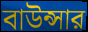
বাউন্সার